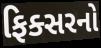
ફિક્સરનો